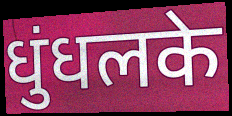
धुंधलके